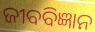
ଜୀବବିଜ୍ଞାନ